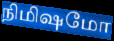
நிமிஷமோ